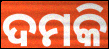
ଦମକି